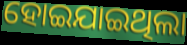
ହୋଇଯାଇଥିଲା